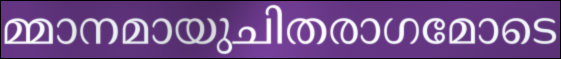
മ്മാനമായുചിതരാഗമോടെ